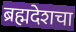
ब्रह्मदेशचा